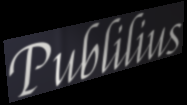
Publilius